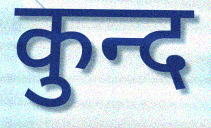
कुन्द